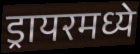
ड्रायरमध्ये